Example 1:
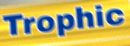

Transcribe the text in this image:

Trophic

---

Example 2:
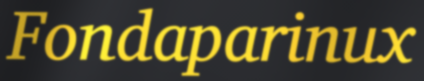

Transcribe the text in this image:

Fondaparinux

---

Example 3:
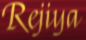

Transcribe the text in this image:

Rejiya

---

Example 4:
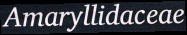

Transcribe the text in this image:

Amaryllidaceae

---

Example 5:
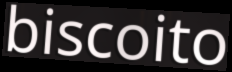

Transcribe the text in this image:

biscoito